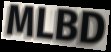
MLBD